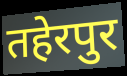
तहेरपुर